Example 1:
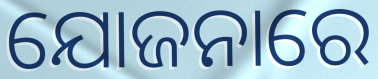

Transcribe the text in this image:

ଯୋଜନାରେ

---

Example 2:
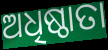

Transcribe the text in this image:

ଅଧିଷ୍ଠାତା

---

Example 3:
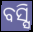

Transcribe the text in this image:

ବସ୍ସି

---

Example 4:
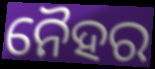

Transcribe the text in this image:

ନୈହର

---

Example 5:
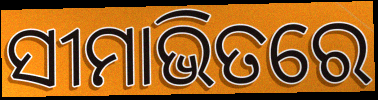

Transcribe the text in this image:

ସୀମାଭିତରେ